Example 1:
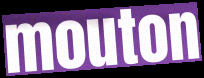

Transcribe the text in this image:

mouton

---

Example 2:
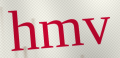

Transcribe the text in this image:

hmv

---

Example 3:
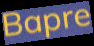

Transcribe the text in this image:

Bapre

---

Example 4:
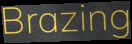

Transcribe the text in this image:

Brazing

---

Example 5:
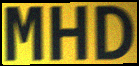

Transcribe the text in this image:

MHD